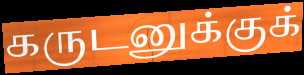
கருடனுக்குக்